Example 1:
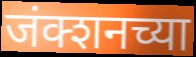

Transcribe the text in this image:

जंक्शनच्या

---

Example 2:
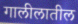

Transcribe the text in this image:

गालीलातील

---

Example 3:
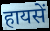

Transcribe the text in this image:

हायसें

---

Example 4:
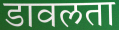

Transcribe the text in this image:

डावलता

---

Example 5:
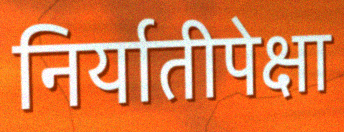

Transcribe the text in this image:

निर्यातीपेक्षा